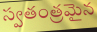
స్వతంత్రమైన